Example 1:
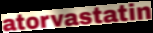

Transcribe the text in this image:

atorvastatin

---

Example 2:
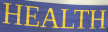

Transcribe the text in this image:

HEALTH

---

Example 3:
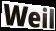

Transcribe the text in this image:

Weil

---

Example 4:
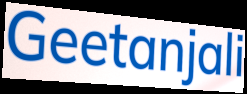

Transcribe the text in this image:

Geetanjali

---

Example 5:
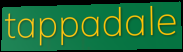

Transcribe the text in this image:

tappadale